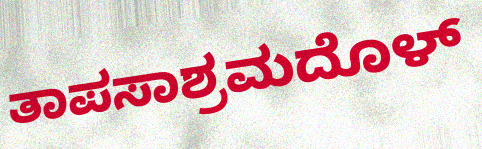
ತಾಪಸಾಶ್ರಮದೊಳ್